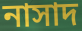
নাসাদ